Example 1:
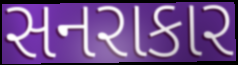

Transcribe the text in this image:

સનરાકાર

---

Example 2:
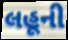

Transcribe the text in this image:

લહૂની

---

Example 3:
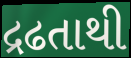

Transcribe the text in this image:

દ્રઢતાથી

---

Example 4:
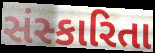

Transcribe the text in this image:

સંસ્કારિતા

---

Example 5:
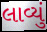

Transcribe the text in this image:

લાવ્યું